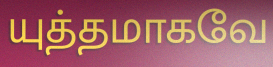
யுத்தமாகவே